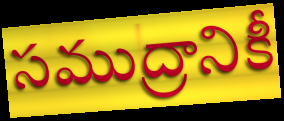
సముద్రానికీ